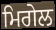
ਮਿਗੇਲ